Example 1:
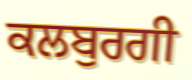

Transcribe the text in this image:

ਕਲਬੁਰਗੀ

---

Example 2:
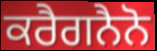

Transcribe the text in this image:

ਕਰੈਗਨੈਨੋ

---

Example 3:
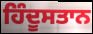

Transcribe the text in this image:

ਹਿੰਦੂਸਤਾਨ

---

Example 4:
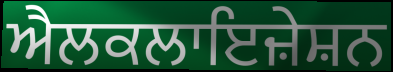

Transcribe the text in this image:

ਐਲਕਲਾਇਜ਼ੇਸ਼ਨ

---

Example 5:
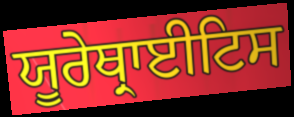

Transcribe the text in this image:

ਯੂਰੇਥ੍ਰਾਈਟਿਸ